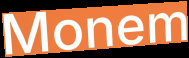
Monem